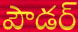
పౌడర్